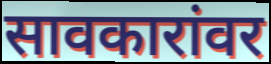
सावकारांवर